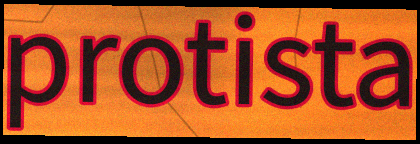
protista